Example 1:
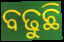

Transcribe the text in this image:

ବଢୁଛି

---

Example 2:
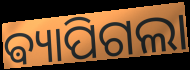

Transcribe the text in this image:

ଵ୍ୟାପିଗଲା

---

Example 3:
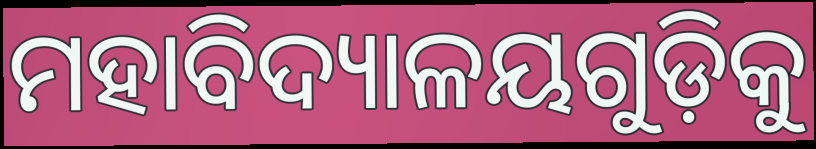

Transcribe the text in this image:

ମହାବିଦ୍ୟାଳୟଗୁଡ଼ିକୁ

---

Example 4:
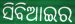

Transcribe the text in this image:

ସିବିଆଇର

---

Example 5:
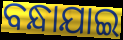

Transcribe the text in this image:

ବନ୍ଧାଯାଇ